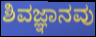
ಶಿವಜ್ಞಾನವು